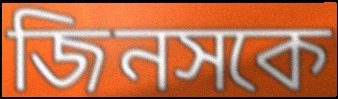
জিনসকে